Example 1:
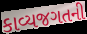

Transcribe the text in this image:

કાવ્યજગતની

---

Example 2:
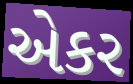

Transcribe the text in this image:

એકર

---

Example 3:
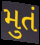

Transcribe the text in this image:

મુતં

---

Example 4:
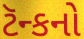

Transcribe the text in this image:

ટૅન્કનો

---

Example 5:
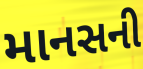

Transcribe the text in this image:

માનસની